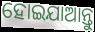
ହୋଇଯାଆନ୍ତୁ